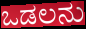
ಒಡಲನು